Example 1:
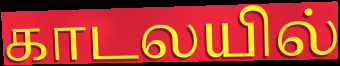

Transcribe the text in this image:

காடலயில்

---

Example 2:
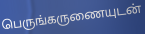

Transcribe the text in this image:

பெருங்கருணையுடன்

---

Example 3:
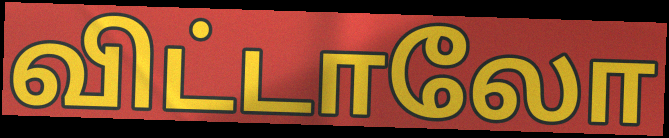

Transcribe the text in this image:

விட்டாலோ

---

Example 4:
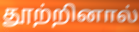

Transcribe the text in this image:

தூற்றினால்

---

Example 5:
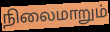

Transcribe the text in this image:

நிலைமாறும்